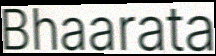
Bhaarata